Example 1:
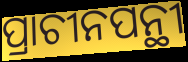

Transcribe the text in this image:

ପ୍ରାଚୀନପନ୍ଥୀ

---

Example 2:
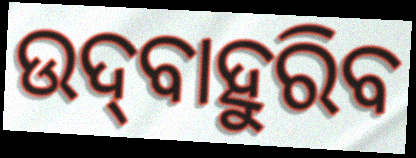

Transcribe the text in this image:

ଉଦ୍‌ବାହୁରିବ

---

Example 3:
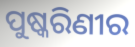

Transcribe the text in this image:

ପୁଷ୍କରିଣୀର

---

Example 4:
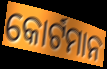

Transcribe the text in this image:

କୋର୍ଟମାନ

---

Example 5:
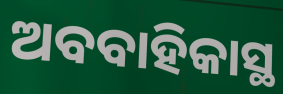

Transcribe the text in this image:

ଅବବାହିକାସ୍ଥ